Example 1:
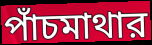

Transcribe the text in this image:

পাঁচমাথার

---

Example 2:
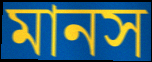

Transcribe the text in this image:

মানস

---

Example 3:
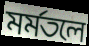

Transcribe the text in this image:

মর্মতলে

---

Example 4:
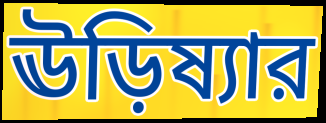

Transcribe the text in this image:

ঊড়িষ্যার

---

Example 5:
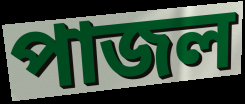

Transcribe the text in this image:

পাজল